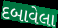
દબાવેલા